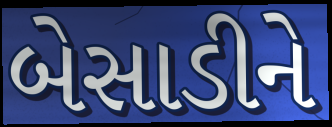
બેસાડીને